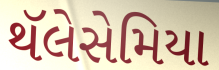
થૅલેસેમિયા